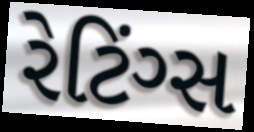
રેટિંગ્સ